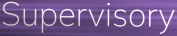
Supervisory